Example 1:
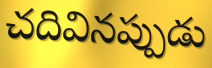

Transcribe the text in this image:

చదివినప్పుడు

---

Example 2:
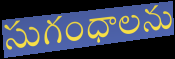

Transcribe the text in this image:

సుగంధాలను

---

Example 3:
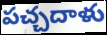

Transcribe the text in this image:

పచ్చదాళు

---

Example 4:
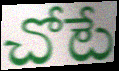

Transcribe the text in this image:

చోటే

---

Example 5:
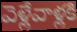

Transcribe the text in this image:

వెళ్లేవాళ్లకి